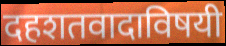
दहशतवादाविषयी